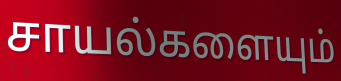
சாயல்களையும்